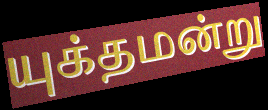
யுக்தமன்று